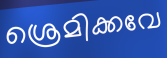
ശ്രെമിക്കവേ